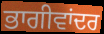
ਭਾਗੀਵਾਂਦਰ